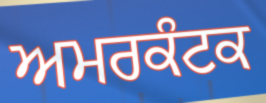
ਅਮਰਕੰਟਕ